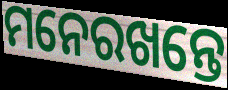
ମନେରଖନ୍ତେ